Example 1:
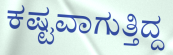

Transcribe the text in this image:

ಕಷ್ಟವಾಗುತ್ತಿದ್ದ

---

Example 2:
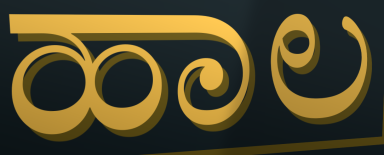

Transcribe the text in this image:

ಹಾಲ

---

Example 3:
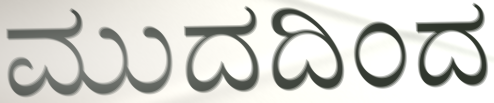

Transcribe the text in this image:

ಮುದದಿಂದ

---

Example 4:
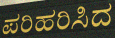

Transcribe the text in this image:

ಪರಿಹರಿಸಿದ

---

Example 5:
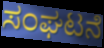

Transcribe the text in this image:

ಸಂಘಟನೆ